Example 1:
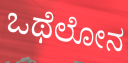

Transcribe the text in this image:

ಒಥೆಲೋನ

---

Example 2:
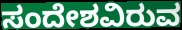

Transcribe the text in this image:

ಸಂದೇಶವಿರುವ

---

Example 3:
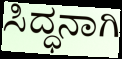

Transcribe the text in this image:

ಸಿದ್ಧನಾಗಿ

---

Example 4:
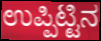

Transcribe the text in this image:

ಉಪ್ಪಿಟ್ಟಿನ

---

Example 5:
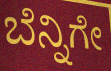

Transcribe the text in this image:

ಬೆನ್ನಿಗೇ